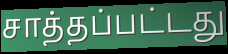
சாத்தப்பட்டது